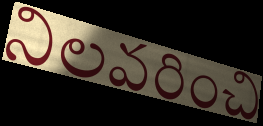
నిలవరించి